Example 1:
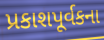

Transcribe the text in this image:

પ્રકાશપૂર્વકના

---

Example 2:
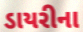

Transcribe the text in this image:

ડાયરીના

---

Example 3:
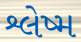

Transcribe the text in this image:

શ્લેષ્મ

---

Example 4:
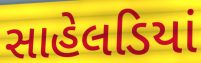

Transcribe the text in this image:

સાહેલડિયાં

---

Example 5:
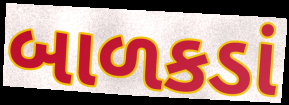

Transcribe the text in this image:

બાળકડાં